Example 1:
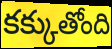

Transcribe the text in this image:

కక్కుతోంది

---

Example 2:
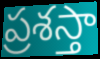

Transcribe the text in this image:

ప్రశస్తా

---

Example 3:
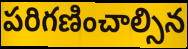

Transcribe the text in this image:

పరిగణించాల్సిన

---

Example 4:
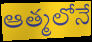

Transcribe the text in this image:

ఆత్మలోనే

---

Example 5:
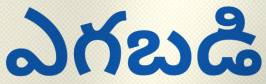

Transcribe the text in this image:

ఎగబడి